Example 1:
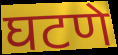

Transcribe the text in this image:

घटणे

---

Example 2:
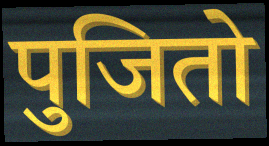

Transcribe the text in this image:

पुजितो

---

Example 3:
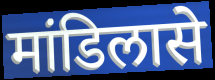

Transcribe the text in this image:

मांडिलासे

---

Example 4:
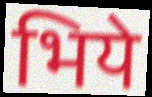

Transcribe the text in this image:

भिये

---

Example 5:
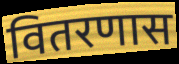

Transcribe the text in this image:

वितरणास